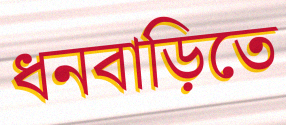
ধনবাড়িতে